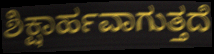
ಶಿಕ್ಷಾರ್ಹವಾಗುತ್ತದೆ